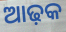
ଆଢ଼କ